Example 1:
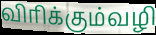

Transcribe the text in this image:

விரிக்கும்வழி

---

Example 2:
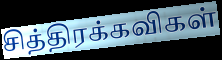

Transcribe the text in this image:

சித்திரக்கவிகள்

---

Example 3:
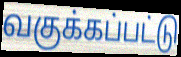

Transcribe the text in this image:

வகுக்கப்பட்டு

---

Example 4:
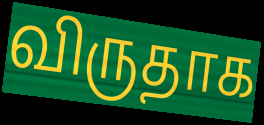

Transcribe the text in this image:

விருதாக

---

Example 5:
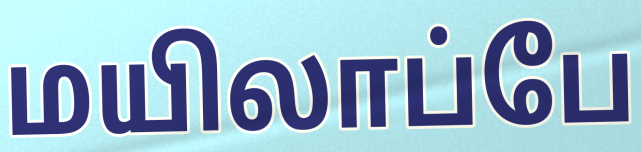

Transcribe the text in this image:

மயிலாப்பே